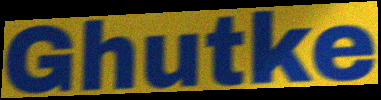
Ghutke